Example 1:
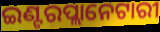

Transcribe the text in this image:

ଇଣ୍ଟରପ୍ଲାନେଟାରୀ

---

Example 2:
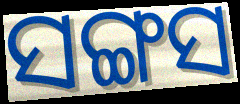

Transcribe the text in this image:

ସଙ୍ଗସ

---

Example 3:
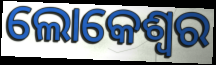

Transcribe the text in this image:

ଲୋକେଶ୍ୱର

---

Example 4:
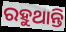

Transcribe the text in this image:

ରହୁଥାନ୍ତି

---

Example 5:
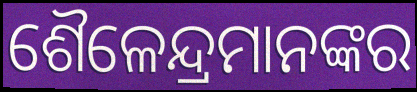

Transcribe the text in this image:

ଶୈଳେନ୍ଦ୍ରମାନଙ୍କର